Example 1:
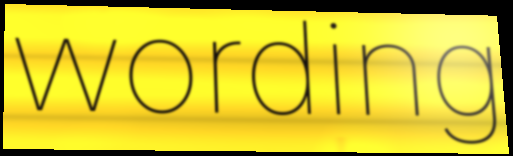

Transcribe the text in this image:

wording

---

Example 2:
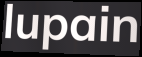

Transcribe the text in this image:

lupain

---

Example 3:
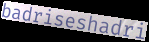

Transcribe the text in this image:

badriseshadri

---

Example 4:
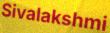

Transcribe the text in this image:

Sivalakshmi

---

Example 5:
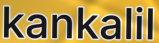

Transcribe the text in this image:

kankalil